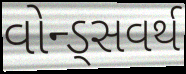
વોન્ડ્સવર્થ